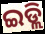
ଇଡ୍ଲି